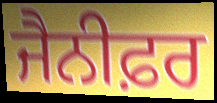
ਜੈਨੀਫ਼ਰ